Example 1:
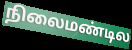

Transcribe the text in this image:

நிலைமண்டில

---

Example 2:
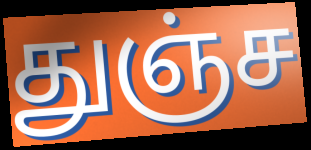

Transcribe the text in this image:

துஞ்ச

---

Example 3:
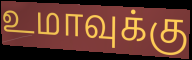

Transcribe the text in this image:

உமாவுக்கு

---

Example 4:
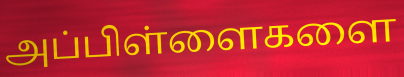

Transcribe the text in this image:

அப்பிள்ளைகளை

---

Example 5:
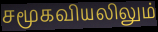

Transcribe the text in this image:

சமூகவியலிலும்